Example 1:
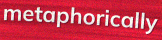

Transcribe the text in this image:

metaphorically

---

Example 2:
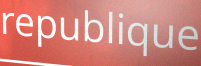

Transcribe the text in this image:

republique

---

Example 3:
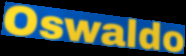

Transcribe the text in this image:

Oswaldo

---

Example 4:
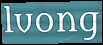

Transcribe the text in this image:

luong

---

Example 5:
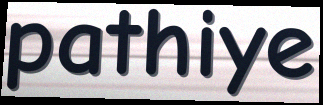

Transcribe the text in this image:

pathiye